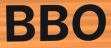
BBO